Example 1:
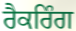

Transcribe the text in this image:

ਰੈਕਰਿੰਗ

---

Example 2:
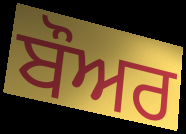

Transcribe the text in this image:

ਬੌਅਰ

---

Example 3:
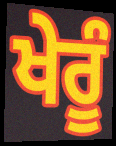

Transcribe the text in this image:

ਖੇਰੂੰ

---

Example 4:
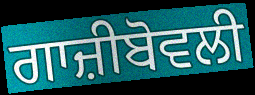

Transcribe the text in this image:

ਗਾਜ਼ੀਬੋਵਲੀ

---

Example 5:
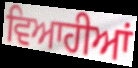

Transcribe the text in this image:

ਵਿਆਹੀਆਂ